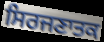
ਸਿਰਜਣਾਤਕ